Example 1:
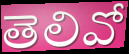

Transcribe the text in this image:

తెలివో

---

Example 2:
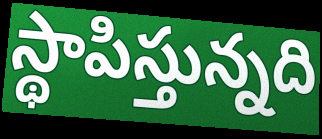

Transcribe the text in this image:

స్థాపిస్తున్నది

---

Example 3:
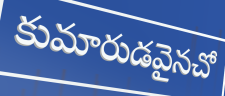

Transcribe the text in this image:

కుమారుడవైనచో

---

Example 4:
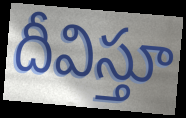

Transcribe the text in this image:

దీవిస్తూ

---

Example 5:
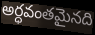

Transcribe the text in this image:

అర్ధవంతమైనది